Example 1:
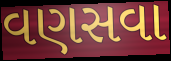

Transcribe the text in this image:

વણસવા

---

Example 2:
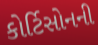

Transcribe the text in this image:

કોર્ટિસોનની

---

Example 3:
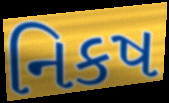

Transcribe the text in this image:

નિકષ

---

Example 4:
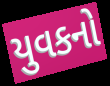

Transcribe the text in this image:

યુવકનો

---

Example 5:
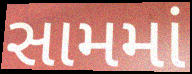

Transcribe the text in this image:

સામમાં